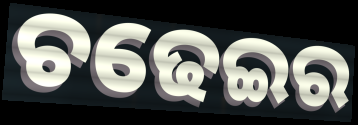
ଚଢେଇର